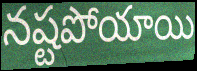
నష్టపోయాయి